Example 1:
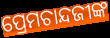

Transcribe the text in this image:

ପ୍ରେମଚାନ୍ଦଜୀଙ୍କ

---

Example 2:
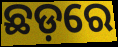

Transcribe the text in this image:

ଛଡ଼ରେ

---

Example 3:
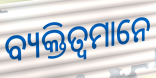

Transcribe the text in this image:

ବ୍ୟକ୍ତିତ୍ୱମାନେ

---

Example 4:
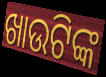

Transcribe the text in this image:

ଖାଉଟିଙ୍କ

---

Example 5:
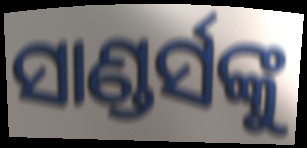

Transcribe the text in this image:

ସାଣ୍ଡର୍ସଙ୍କୁ